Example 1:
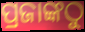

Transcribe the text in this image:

ପ୍ରଜାଙ୍କଠୁ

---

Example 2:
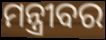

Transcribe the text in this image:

ମନ୍ତ୍ରୀବର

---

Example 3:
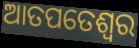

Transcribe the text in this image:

ଆତପତେଶ୍ୱର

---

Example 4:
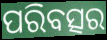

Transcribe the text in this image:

ପରିବତ୍ସର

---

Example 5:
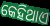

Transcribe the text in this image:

କେହିଥାଏ